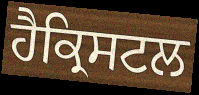
ਹੈਕ੍ਰਿਸਟਲ